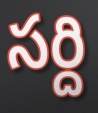
సర్ది